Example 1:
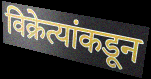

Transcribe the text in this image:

विक्रेत्यांकडून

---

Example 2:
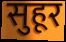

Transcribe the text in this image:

सुहूर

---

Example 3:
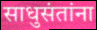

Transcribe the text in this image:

साधुसंतांना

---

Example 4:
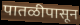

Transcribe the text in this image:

पातळीपासून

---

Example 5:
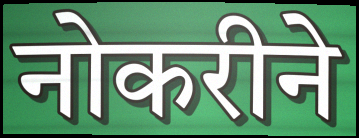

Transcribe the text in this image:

नोकरीने